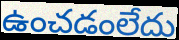
ఉంచడంలేదు